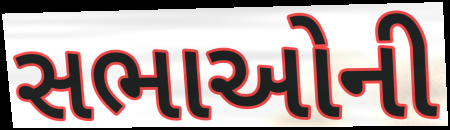
સભાઓની